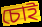
চোই